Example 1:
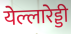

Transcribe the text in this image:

येल्लारेड्डी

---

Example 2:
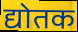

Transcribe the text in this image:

द्योतक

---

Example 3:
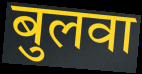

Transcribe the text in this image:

बुलवा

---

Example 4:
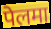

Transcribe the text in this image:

पेलमा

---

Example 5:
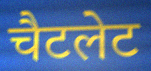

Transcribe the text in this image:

चैटलेट